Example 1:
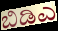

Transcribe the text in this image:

ಬಿಡಿಎ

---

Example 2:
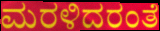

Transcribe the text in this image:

ಮರಳಿದರಂತೆ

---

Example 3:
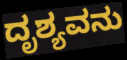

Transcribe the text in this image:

ದೃಶ್ಯವನು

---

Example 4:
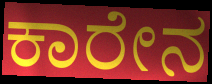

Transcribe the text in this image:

ಕಾರೇನ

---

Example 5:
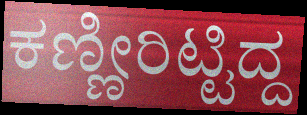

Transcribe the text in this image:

ಕಣ್ಣೀರಿಟ್ಟಿದ್ದ